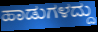
ಹಾಡುಗಳದ್ದು